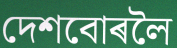
দেশবোৰলৈ